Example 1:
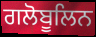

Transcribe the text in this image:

ਗਲੋਬੂਲਿਨ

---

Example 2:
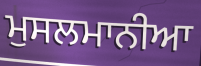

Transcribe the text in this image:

ਮੁਸਲਮਾਨੀਆ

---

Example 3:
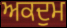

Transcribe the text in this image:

ਅਕਦੁਮ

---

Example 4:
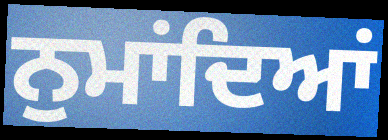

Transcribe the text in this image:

ਨੁਮਾਂਦਿਆਂ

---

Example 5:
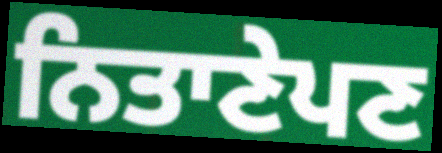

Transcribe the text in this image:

ਨਿਤਾਣੇਪਣ